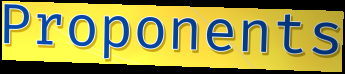
Proponents